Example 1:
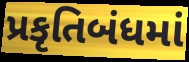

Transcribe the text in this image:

પ્રકૃતિબંધમાં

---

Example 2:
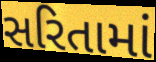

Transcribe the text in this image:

સરિતામાં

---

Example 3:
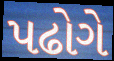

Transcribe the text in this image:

પઢોગે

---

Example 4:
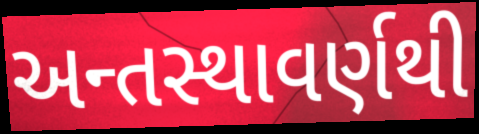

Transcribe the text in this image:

અન્તસ્થાવર્ણથી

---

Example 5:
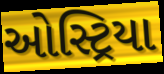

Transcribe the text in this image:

ઓસ્ટ્રિયા